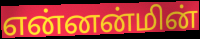
என்னன்மின்